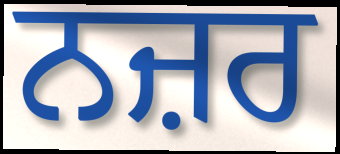
ਨਜ਼ਰ